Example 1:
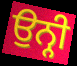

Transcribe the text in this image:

ਉਨ੍ਨੀ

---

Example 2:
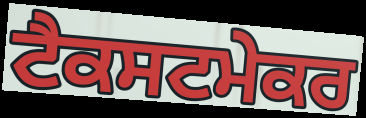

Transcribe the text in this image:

ਟੈਕਸਟਮੇਕਰ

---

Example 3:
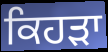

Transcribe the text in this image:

ਕਿਹੜਾ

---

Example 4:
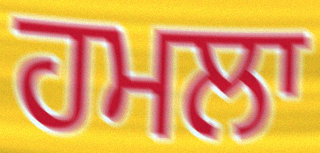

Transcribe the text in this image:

ਹਮਲਾ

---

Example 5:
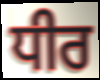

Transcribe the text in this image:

ਧੀਰ